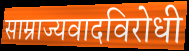
साम्राज्यवादविरोधी